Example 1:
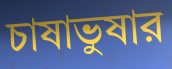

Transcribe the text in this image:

চাষাভুষার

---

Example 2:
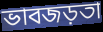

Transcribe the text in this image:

ভাবজড়তা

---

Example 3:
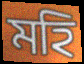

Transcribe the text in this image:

মহি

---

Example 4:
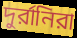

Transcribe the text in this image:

দুর্রানিরা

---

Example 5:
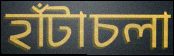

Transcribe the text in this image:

হাঁটাচলা